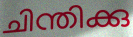
ചിന്തിക്കു